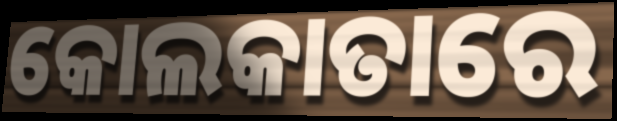
କୋଲକାତାରେ